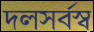
দলসর্বস্ব